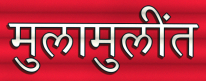
मुलामुलींत